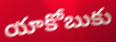
యాకోబుకు